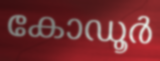
കോഡൂർ